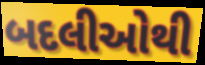
બદલીઓથી